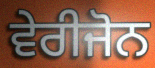
ਵੇਰੀਜੋਨ